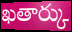
ఖతార్కు